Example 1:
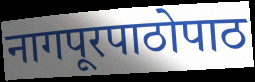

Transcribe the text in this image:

नागपूरपाठोपाठ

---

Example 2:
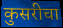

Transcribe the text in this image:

कुसरीचा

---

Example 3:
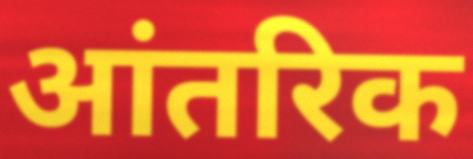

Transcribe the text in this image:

आंतरिक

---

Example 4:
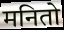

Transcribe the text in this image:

मनितो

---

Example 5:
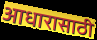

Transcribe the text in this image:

आधारासाठी